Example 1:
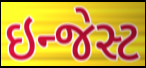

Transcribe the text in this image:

ઇન્જેસ્ટ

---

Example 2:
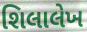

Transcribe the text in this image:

શિલાલેખ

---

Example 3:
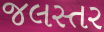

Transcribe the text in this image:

જલસ્તર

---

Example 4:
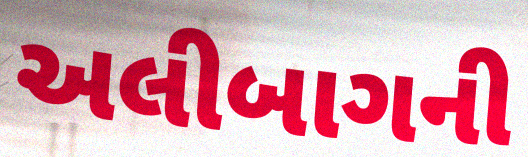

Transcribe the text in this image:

અલીબાગની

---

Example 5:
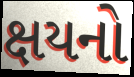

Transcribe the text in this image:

ક્ષયનો